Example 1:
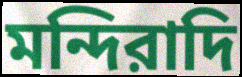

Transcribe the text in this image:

মন্দিরাদি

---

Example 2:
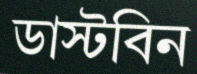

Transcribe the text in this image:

ডাস্টবিন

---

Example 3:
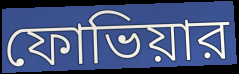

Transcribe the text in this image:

ফোভিয়ার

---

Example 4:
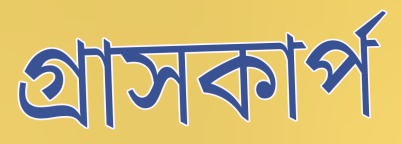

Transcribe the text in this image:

গ্রাসকার্প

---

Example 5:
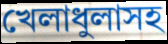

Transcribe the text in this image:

খেলাধুলাসহ